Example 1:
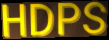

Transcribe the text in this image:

HDPS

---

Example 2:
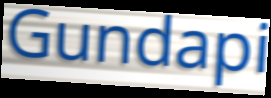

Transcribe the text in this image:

Gundapi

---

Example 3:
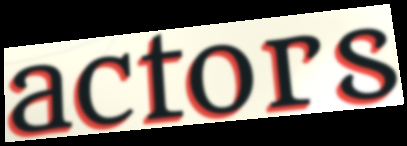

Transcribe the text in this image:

actors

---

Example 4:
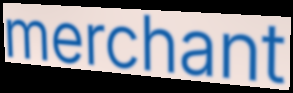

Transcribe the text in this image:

merchant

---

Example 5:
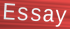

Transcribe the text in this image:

Essay